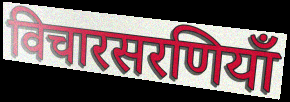
विचारसरणियाँ